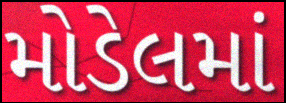
મોડેલમાં